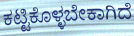
ಕಟ್ಟಿಕೊಳ್ಳಬೇಕಾಗಿದೆ